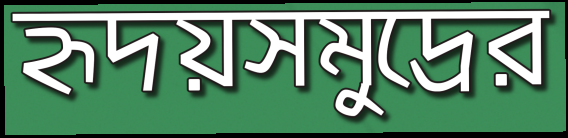
হৃদয়সমুদ্রের